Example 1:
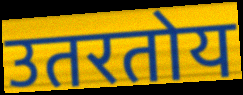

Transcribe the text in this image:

उतरतोय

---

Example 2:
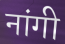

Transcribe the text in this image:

नांगी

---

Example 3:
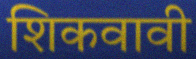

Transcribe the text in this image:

शिकवावी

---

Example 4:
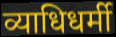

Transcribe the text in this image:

व्याधिधर्मी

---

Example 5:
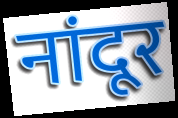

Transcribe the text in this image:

नांदूर